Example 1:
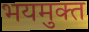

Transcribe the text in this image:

भयमुक्‍त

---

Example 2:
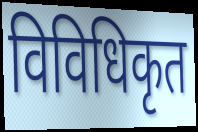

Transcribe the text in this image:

विविधिकृत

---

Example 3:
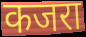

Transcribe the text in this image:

कजरा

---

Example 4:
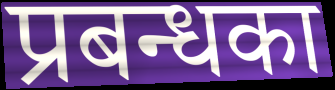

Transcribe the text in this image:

प्रबन्धका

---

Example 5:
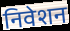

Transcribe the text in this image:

निवेशन